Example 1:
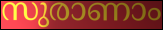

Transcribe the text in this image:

സുരാണാം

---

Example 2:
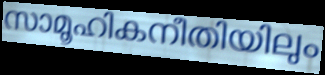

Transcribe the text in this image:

സാമൂഹികനീതിയിലും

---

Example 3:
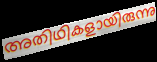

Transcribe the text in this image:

അതിഥികളായിരുന്നു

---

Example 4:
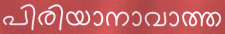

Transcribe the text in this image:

പിരിയാനാവാത്ത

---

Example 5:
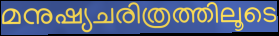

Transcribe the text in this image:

മനുഷ്യചരിത്രത്തിലൂടെ